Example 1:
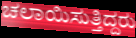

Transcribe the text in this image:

ಚಲಾಯಿಸುತ್ತಿದ್ದರು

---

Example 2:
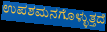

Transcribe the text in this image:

ಉಪಶಮನಗೊಳ್ಳುತ್ತದೆ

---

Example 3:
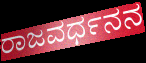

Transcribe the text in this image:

ರಾಜವರ್ಧನನ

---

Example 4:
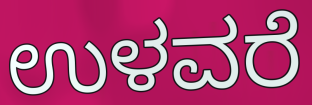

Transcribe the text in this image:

ಉಳವರೆ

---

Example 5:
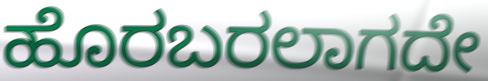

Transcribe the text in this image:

ಹೊರಬರಲಾಗದೇ